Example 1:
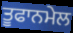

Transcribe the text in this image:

ਤੂਫਾਨਮੇਲ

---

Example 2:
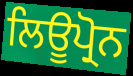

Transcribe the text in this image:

ਲਿਊਪ੍ਰੋਨ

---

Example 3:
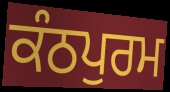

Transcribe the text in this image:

ਕੰਠਪੁਰਮ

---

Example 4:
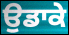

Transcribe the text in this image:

ਉਡਾਕੇ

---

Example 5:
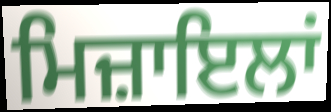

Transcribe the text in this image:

ਮਿਜ਼ਾਇਲਾਂ